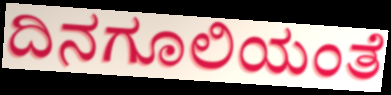
ದಿನಗೂಲಿಯಂತೆ